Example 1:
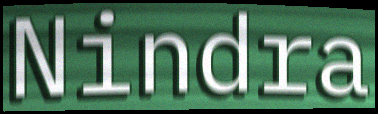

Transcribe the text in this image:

Nindra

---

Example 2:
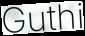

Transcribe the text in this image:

Guthi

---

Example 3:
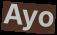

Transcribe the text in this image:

Ayo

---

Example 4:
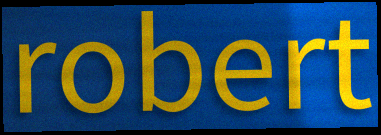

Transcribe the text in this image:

robert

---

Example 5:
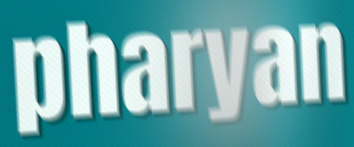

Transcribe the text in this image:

pharyan